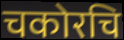
चकोरचि